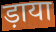
ड़ाया